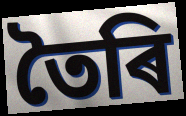
তৈৰি